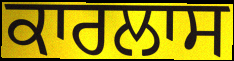
ਕਾਰਲਾਸ